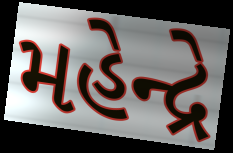
મહેન્દ્રે